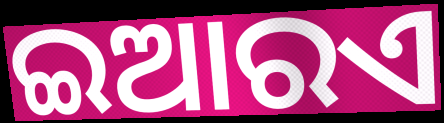
ଇଆରଏ